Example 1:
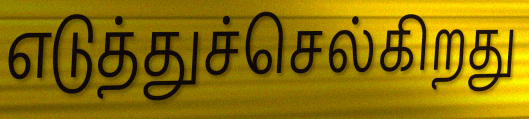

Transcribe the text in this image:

எடுத்துச்செல்கிறது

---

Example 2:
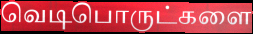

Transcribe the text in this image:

வெடிபொருட்களை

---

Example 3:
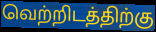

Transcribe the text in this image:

வெற்றிடத்திற்கு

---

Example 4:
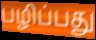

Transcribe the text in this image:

பழிப்பது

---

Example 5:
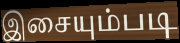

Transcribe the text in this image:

இசையும்படி